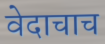
वेदाचाच